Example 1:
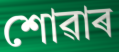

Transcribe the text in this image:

শোৱাৰ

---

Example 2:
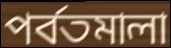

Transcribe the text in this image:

পৰ্বতমালা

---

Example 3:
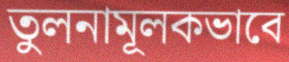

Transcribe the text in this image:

তুলনামূলকভাবে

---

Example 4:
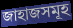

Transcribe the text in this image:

জাহাজসমূহ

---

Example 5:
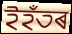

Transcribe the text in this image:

ইহঁতৰ